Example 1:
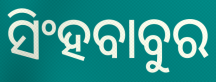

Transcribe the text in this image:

ସିଂହବାବୁର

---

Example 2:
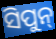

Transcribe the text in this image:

ସିପୁନ୍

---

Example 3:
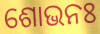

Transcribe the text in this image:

ଶୋଭନଃ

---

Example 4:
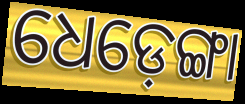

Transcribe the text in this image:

ଧେଡ଼େଙ୍ଗା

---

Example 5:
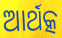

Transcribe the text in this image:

ଆର୍ଥତ୍କ